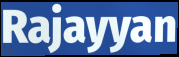
Rajayyan